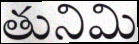
తునిమి